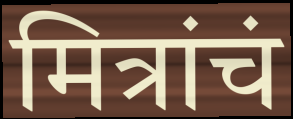
मित्रांचं